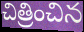
చిత్రించిన